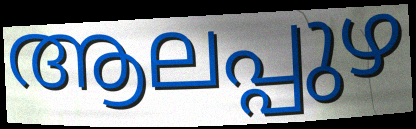
ആലപ്പുഴ